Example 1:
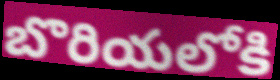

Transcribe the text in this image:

బొరియలోకి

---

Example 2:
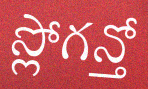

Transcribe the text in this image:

స్లోగన్తో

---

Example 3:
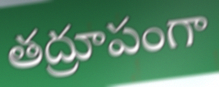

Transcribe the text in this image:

తద్రూపంగా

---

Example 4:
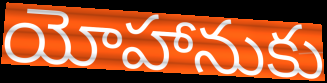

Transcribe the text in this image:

యోహానుకు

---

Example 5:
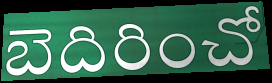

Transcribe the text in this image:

బెదిరించో